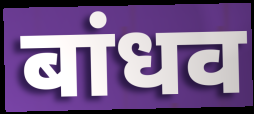
बांधव